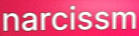
narcissm